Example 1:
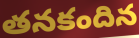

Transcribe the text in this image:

తనకందిన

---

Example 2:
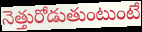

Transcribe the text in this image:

నెత్తురోడుతుంటుంటే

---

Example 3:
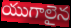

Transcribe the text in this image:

యుగాలైన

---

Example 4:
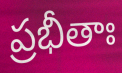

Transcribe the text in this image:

ప్రభీతాః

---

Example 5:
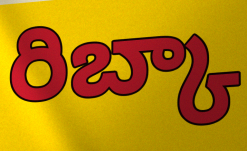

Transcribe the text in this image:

రిబ్కా